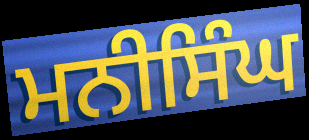
ਮਨੀਸਿੰਘ